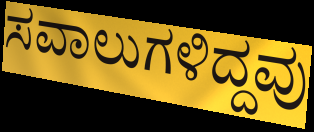
ಸವಾಲುಗಳಿದ್ದವು